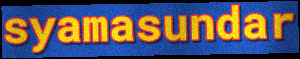
syamasundar